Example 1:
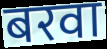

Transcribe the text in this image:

बरवा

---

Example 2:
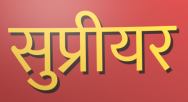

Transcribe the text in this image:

सुप्रीयर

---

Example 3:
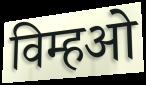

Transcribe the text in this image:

विम्हओ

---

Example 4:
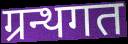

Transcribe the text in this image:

ग्रन्थगत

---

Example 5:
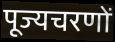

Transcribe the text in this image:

पूज्यचरणों